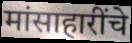
मांसाहारींचे